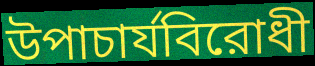
উপাচার্যবিরোধী